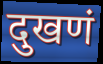
दुखणं